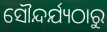
ସୌନ୍ଦର୍ଯ୍ୟଠାରୁ